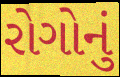
રોગોનું